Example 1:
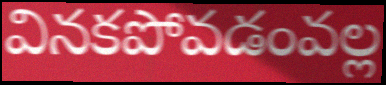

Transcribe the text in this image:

వినకపోవడంవల్ల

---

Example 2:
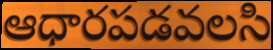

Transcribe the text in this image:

ఆధారపడవలసి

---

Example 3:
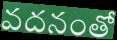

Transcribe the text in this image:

వదనంతో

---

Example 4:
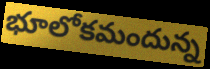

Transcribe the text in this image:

భూలోకమందున్న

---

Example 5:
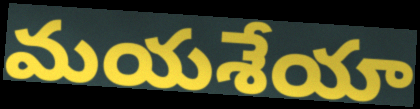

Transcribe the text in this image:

మయశేయా